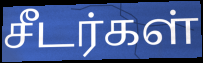
சீடர்கள்